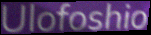
Ulofoshio